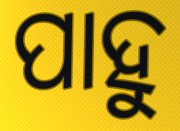
ପାହୁ